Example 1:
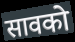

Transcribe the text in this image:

सावको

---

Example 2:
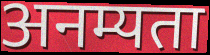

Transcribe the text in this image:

अनम्यता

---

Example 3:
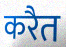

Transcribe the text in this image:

करैत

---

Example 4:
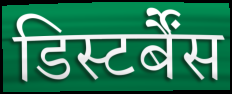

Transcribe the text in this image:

डिस्टर्बैंस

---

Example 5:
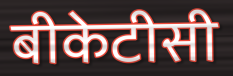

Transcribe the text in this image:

बीकेटीसी